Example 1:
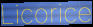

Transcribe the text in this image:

Licorice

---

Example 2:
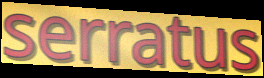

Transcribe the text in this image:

serratus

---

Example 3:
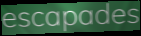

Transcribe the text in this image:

escapades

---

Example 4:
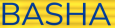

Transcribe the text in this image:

BASHA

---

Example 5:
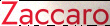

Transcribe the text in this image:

Zaccaro